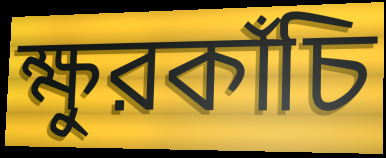
ক্ষুরকাঁচি